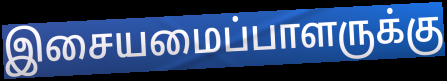
இசையமைப்பாளருக்கு